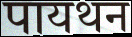
पायथन